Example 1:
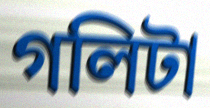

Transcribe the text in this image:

গলিটা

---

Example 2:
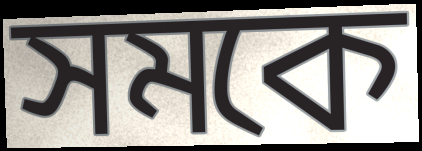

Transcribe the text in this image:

সমকে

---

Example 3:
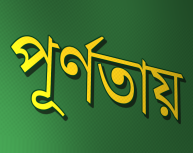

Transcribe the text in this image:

পূর্ণতায়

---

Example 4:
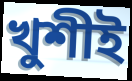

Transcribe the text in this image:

খুশীই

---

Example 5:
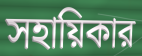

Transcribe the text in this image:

সহায়িকার